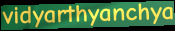
vidyarthyanchya